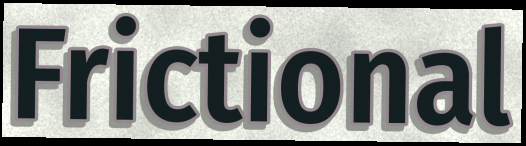
Frictional